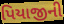
પિયાજીની